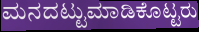
ಮನದಟ್ಟುಮಾಡಿಕೊಟ್ಟರು